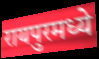
रायपुरमध्ये